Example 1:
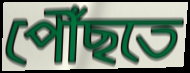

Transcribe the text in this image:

পৌঁছতে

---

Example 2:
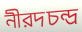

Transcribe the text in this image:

নীরদচন্দ্র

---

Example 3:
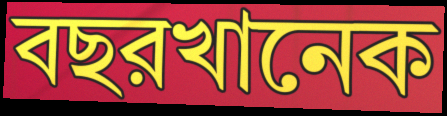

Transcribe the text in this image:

বছরখানেক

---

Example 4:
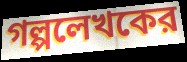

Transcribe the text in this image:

গল্পলেখকের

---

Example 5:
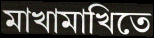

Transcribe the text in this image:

মাখামাখিতে